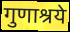
गुणाश्रये